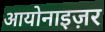
आयोनाइज़र